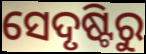
ସେଦୃଷ୍ଟିରୁ